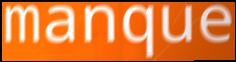
manque